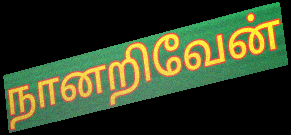
நானறிவேன்